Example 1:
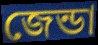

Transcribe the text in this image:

জেন্ডা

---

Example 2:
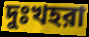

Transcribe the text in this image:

দুঃখহরা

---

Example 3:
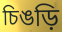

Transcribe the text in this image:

চিঙড়ি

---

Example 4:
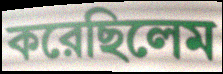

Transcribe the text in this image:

করেছিলেম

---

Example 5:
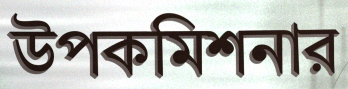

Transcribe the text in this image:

উপকমিশনার